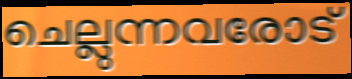
ചെല്ലുന്നവരോട്